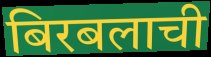
बिरबलाची